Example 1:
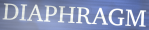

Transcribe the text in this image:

DIAPHRAGM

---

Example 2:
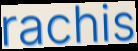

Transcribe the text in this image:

rachis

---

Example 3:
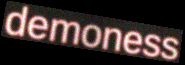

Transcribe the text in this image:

demoness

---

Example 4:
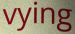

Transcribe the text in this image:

vying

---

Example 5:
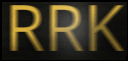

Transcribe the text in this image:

RRK